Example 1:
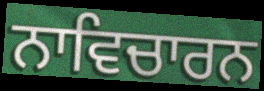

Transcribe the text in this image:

ਨਾਵਿਚਾਰਨ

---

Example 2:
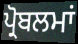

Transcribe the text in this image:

ਪ੍ਰੋਬਲਮਾਂ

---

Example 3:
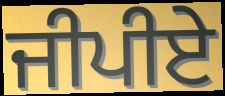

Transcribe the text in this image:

ਜੀਪੀਏ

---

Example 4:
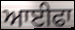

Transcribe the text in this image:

ਆਈਫਾ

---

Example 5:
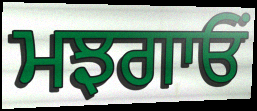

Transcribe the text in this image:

ਮਝਗਾਓਂ